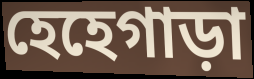
হেহেগাড়া